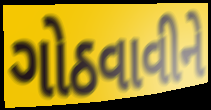
ગોઠવાવીને